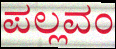
ಪಲ್ಲವಂ